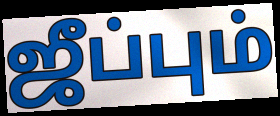
ஜீப்பும்